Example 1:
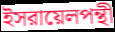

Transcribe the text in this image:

ইসরায়েলপন্থী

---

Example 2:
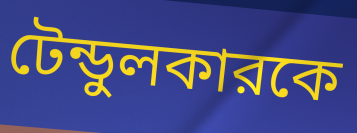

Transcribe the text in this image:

টেন্ডুলকারকে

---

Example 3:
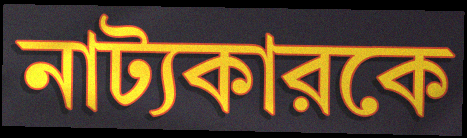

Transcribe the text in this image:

নাট্যকারকে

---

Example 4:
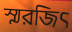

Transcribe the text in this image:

স্মরজিৎ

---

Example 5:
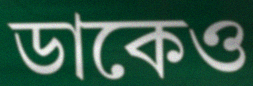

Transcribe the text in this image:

ডাকেও